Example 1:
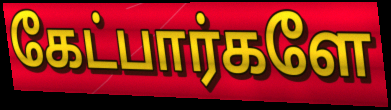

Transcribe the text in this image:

கேட்பார்களே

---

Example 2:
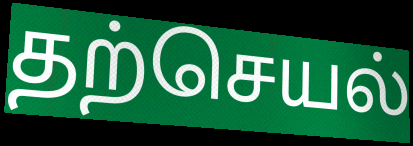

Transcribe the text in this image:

தற்செயல்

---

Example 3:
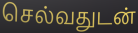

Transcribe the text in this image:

செல்வதுடன்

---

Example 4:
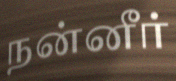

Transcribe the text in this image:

நன்னீர்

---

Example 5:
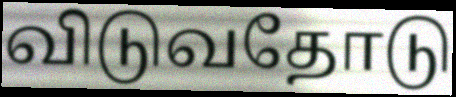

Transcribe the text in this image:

விடுவதோடு